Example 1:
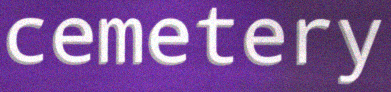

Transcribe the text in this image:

cemetery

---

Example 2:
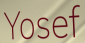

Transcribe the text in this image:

Yosef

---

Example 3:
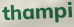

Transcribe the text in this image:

thampi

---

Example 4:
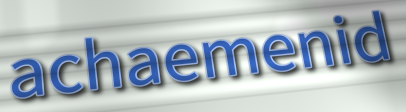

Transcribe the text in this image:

achaemenid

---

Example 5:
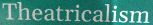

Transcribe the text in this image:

Theatricalism